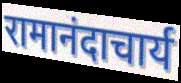
रामानंदाचार्य